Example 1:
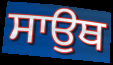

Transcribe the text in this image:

ਸਾਉਥ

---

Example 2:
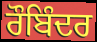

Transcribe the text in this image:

ਰੌਬਿੰਦਰ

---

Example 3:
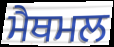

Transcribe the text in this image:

ਮੈਥਮਲ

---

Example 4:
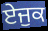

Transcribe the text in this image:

ਏਜੁਕ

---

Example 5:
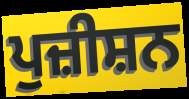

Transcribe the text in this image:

ਪੁਜ਼ੀਸ਼ਨ